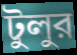
টুলুর